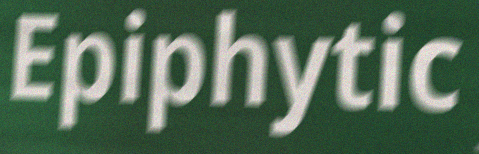
Epiphytic